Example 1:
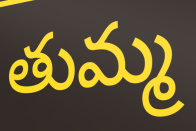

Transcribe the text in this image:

తుమ్మ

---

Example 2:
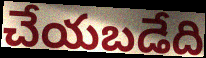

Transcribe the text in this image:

చేయబడేది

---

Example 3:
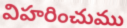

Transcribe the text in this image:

విహరించుము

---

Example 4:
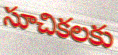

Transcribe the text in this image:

సూచికలకు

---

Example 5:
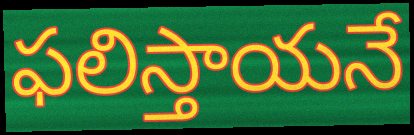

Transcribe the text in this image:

ఫలిస్తాయనే